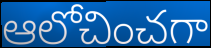
ఆలోచించగా